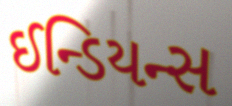
ઈન્ડિયન્સ